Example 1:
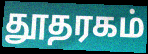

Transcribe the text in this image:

தூதரகம்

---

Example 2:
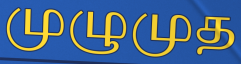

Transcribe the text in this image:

முழுமுத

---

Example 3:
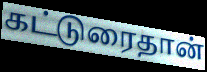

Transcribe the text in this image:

கட்டுரைதான்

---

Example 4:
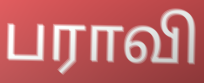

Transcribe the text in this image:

பராவி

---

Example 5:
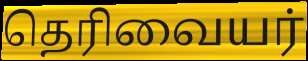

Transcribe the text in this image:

தெரிவையர்